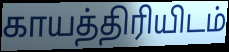
காயத்திரியிடம்